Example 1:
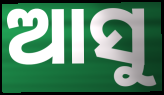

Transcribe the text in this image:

ଆସୁ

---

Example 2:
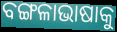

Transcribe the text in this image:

ବଙ୍ଗଳାଭାଷାକୁ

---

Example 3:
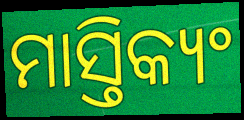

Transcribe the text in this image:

ମାସ୍ତିକ୍ୟଂ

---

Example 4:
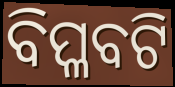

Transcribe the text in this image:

ବିପ୍ଳବଟି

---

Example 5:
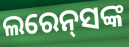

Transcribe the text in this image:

ଲରେନ୍‌ସଙ୍କ